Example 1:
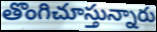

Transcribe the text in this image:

తొంగిచూస్తున్నారు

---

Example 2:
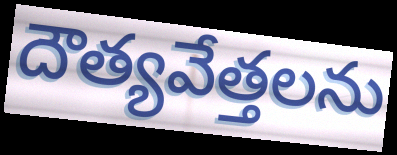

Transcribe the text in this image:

దౌత్యవేత్తలను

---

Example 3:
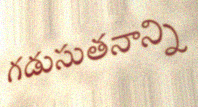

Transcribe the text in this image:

గడుసుతనాన్ని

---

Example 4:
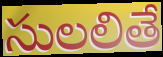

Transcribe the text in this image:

సులలితే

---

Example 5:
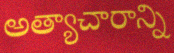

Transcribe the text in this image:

అత్యాచారాన్ని